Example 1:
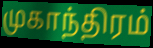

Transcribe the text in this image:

முகாந்திரம்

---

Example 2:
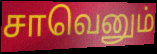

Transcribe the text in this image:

சாவெனும்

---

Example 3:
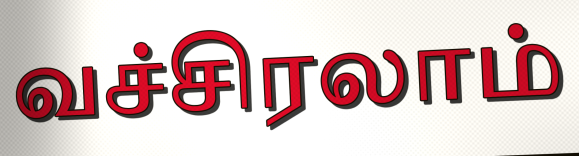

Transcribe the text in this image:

வச்சிரலாம்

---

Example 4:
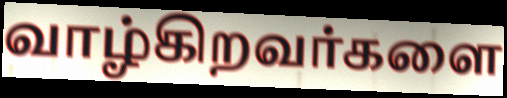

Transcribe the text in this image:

வாழ்கிறவர்களை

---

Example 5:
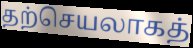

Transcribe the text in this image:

தற்செயலாகத்